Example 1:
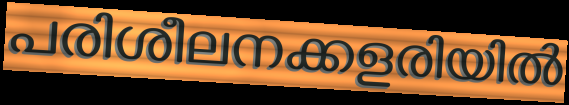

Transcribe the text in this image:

പരിശീലനക്കളരിയിൽ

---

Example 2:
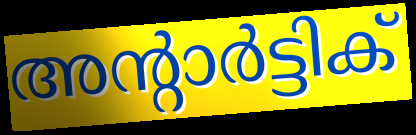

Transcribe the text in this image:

അന്റാർട്ടിക്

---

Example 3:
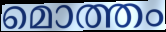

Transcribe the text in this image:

മൊത്തം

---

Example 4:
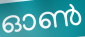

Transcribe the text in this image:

ഓൺ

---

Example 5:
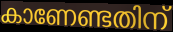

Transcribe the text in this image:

കാണേണ്ടതിന്